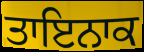
ਤਾਇਨਾਕ